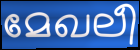
മേഖലീ